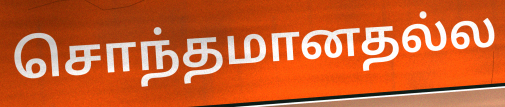
சொந்தமானதல்ல